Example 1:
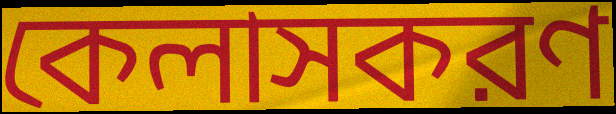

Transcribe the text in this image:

কেলাসকরণ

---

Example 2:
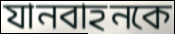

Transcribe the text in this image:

যানবাহনকে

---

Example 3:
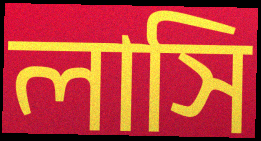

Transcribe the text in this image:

লাসি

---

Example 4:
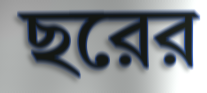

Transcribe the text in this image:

ছরের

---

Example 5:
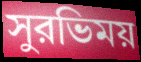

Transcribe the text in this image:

সুরভিময়